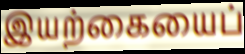
இயற்கையைப்